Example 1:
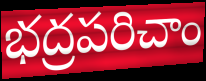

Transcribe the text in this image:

భద్రపరిచాం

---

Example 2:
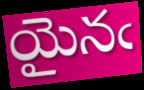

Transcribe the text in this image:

యైనఁ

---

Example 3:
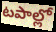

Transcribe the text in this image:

టపాల్లో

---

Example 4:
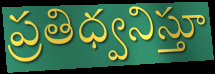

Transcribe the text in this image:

ప్రతిధ్వనిస్తూ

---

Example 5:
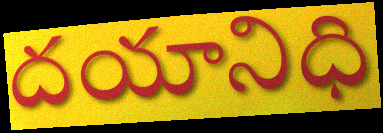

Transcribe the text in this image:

దయానిధి